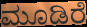
ಮೂಡಿರೆ